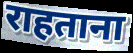
राहताना